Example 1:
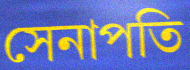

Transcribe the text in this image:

সেনাপতি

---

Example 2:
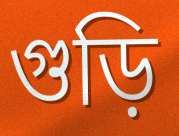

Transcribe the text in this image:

গুড়ি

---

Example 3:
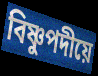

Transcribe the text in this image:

বিষ্ণুপদীয়ে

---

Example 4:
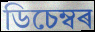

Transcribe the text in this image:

ডিচেম্বৰ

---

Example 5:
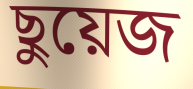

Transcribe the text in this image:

ছুয়েজ